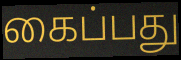
கைப்பது